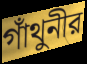
গাঁথুনীর